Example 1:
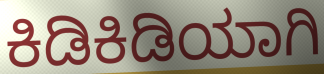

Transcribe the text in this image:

ಕಿಡಿಕಿಡಿಯಾಗಿ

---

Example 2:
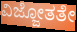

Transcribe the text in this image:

ವಿಜ್ಜೋತತೇ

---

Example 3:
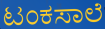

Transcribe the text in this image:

ಟಂಕಸಾಲೆ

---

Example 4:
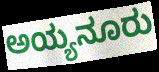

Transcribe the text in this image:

ಅಯ್ಯನೂರು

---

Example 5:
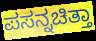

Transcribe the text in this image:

ಪಸನ್ನಚಿತ್ತಾ